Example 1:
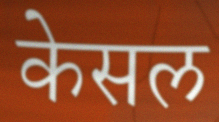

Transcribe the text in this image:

केसल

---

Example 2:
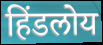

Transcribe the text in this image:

हिंडलोय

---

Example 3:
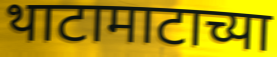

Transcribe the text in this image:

थाटामाटाच्या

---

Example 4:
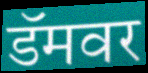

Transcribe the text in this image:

डॅमवर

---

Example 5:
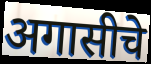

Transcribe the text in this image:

अगासीचे